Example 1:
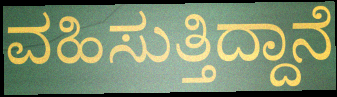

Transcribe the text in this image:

ವಹಿಸುತ್ತಿದ್ದಾನೆ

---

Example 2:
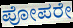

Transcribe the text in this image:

ಪೋಪರೇ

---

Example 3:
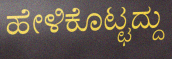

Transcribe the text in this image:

ಹೇಳಿಕೊಟ್ಟದ್ದು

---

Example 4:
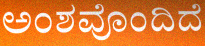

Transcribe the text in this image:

ಅಂಶವೊಂದಿದೆ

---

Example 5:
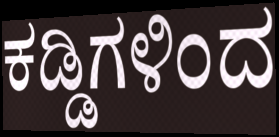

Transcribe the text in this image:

ಕಡ್ಡಿಗಳಿಂದ